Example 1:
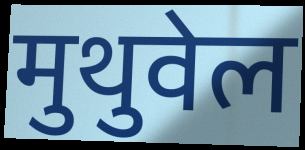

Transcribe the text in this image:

मुथुवेल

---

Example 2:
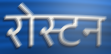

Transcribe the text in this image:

रोस्टन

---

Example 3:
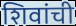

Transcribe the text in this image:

शिवांची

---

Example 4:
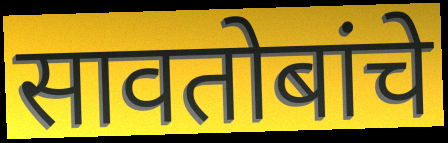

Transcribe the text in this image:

सावतोबांचे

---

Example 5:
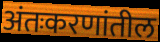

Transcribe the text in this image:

अंतःकरणांतील